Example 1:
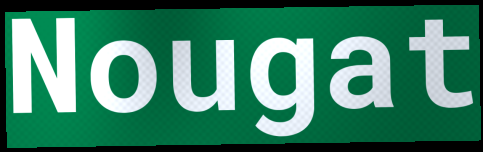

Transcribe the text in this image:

Nougat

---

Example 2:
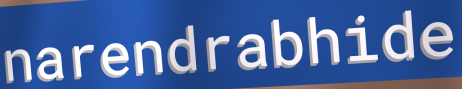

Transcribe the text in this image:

narendrabhide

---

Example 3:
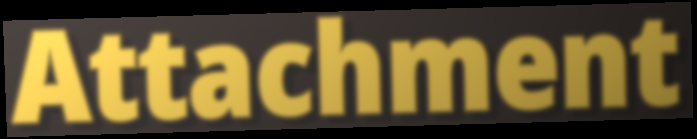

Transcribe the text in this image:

Attachment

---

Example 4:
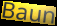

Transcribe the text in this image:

Baun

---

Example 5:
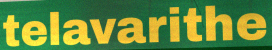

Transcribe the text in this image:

telavarithe